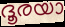
ദൂരയാ